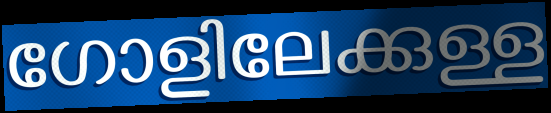
ഗോളിലേക്കുള്ള